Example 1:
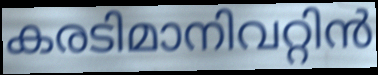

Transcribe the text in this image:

കരടിമാനിവറ്റിൻ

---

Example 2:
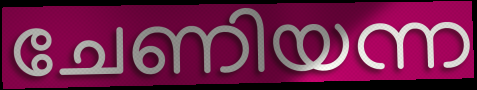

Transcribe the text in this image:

ചേണിയന്ന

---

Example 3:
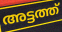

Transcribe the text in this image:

അട്ടത്ത്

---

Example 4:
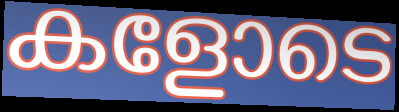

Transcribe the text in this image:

കളോടെ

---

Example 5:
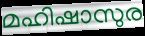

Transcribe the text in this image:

മഹിഷാസുര